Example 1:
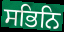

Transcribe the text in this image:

ਸਭਿਨਿ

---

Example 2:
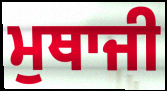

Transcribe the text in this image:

ਮੁਥਾਜੀ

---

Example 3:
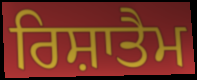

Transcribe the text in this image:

ਰਿਸ਼ਾਤੈਮ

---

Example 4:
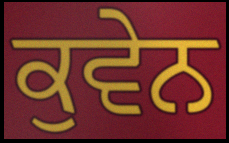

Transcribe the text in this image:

ਕੁਵੇਨ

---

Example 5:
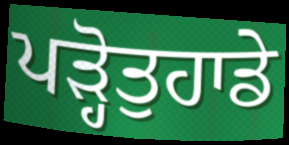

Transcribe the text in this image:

ਪੜ੍ਹੋਤੁਹਾਡੇ